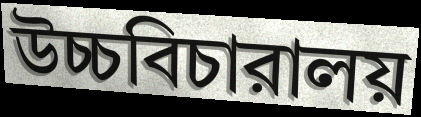
উচ্চবিচারালয়